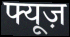
फ्यूज़